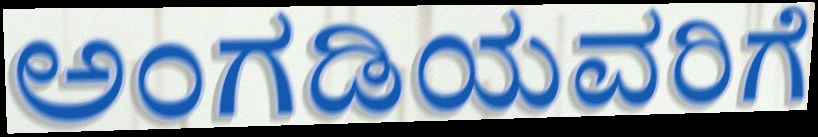
ಅಂಗಡಿಯವರಿಗೆ